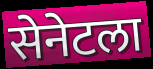
सेनेटला